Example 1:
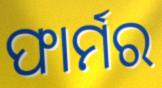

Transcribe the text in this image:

ଫାର୍ମର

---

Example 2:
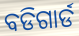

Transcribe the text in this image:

ବଡିଗାର୍ଡ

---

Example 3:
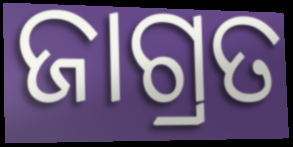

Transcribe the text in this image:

ଜାଗ୍ରତ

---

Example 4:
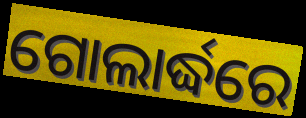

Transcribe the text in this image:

ଗୋଲାର୍ଦ୍ଧରେ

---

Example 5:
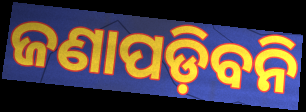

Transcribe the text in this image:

ଜଣାପଡ଼ିବନି